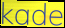
kade